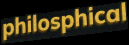
philosphical